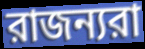
রাজন্যরা